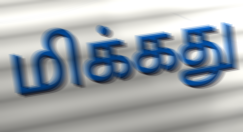
மிக்கது